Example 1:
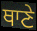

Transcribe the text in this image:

ਥਾਣੇ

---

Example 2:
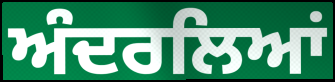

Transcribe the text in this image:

ਅੰਦਰਲਿਆਂ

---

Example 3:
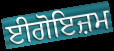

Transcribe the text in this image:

ਈਗੋਇਜ਼ਮ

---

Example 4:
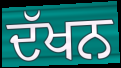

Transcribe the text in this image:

ਦੱਖਨ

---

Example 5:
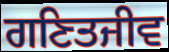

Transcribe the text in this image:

ਗਣਿਤਜੀਵ